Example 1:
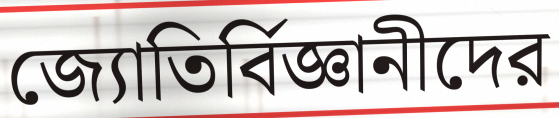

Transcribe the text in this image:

জ্যোতির্বিজ্ঞানীদের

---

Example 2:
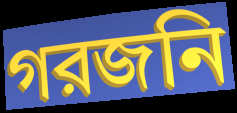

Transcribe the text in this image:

গরজনি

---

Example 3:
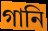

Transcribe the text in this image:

গানি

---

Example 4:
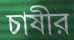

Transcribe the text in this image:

চাষীর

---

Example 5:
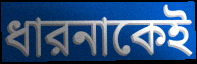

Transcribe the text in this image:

ধারনাকেই